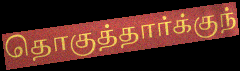
தொகுத்தார்க்குந்